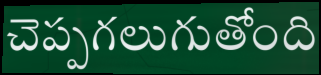
చెప్పగలుగుతోంది